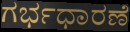
ಗರ್ಭಧಾರಣೆ